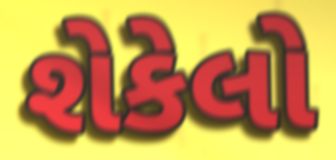
શેકેલો